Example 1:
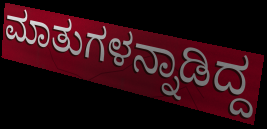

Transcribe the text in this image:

ಮಾತುಗಳನ್ನಾಡಿದ್ದ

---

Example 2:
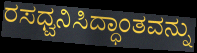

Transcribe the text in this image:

ರಸಧ್ವನಿಸಿದ್ಧಾಂತವನ್ನು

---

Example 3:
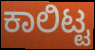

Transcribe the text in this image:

ಕಾಲಿಟ್ಟ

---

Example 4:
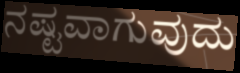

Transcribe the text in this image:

ನಷ್ಟವಾಗುವುದು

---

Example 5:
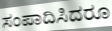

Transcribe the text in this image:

ಸಂಪಾದಿಸಿದರೂ